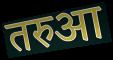
तरुआ